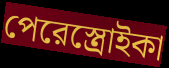
পেরেস্ত্রোইকা